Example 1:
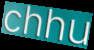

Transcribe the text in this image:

chhu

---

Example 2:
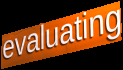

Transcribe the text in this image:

evaluating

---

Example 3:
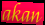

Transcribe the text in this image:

akan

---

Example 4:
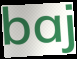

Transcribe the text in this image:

baj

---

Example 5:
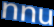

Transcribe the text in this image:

nnu